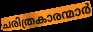
ചരിത്രകാരന്മാർ